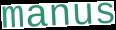
manus